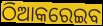
ଠିଆକରେଇବ